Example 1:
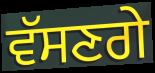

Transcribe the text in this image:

ਵੱਸਣਗੇ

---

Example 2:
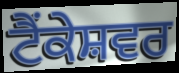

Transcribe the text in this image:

ਟੈਂਕੇਸ਼ਵਰ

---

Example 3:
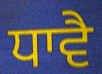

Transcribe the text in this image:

ਧਾਵੈ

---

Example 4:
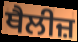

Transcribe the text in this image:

ਥੈਲੀਜ਼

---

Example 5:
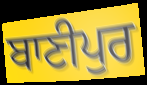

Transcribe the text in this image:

ਬਾਣੀਪੁਰ